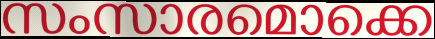
സംസാരമൊക്കെ